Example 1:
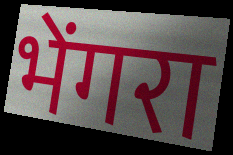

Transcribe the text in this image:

भेंगरा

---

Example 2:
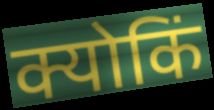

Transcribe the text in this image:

क्योकिं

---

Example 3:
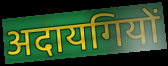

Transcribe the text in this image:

अदायगियों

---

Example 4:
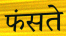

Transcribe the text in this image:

फंसते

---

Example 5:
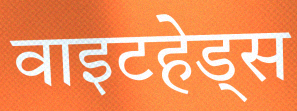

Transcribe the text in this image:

वाइटहेड्स